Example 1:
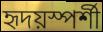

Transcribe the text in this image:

হৃদয়স্পর্শী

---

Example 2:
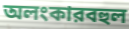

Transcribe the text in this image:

অলংকারবহুল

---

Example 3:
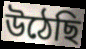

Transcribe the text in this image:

উঠেছি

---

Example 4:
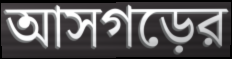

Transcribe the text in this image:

আসগড়ের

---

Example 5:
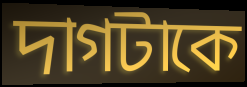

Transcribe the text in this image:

দাগটাকে